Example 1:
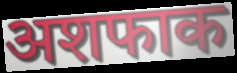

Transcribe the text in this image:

अशफाक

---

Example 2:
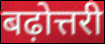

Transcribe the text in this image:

बढ़ोत्तरी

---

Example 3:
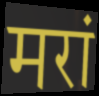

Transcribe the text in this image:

मरां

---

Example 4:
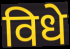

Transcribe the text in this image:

विधे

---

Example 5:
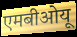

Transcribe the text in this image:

एमबीओयू